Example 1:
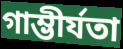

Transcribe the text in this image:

গাম্ভীর্যতা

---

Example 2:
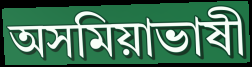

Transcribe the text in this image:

অসমিয়াভাষী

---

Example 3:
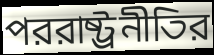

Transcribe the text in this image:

পররাষ্ট্রনীতির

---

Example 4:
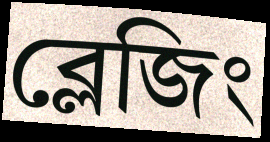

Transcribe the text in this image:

ব্লেজিং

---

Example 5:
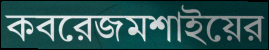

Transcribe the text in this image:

কবরেজমশাইয়ের